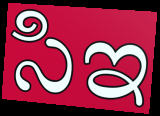
సిఇ